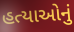
હત્યાઓનું